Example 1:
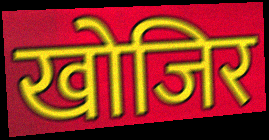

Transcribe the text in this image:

खोजिर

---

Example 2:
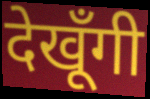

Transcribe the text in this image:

देखूँगी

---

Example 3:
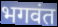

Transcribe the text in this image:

भगवंत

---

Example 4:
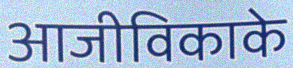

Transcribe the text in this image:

आजीविकाके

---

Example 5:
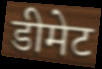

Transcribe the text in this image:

डीमेट